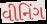
વીનિંગ